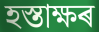
হস্তাক্ষৰ